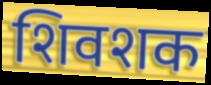
शिवशक